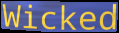
Wicked